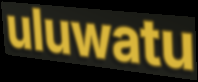
uluwatu